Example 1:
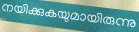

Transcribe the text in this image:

നയിക്കുകയുമായിരുന്നു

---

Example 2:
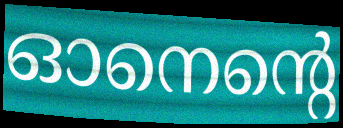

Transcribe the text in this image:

ഓനെന്റെ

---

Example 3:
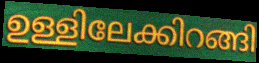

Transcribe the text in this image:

ഉള്ളിലേക്കിറങ്ങി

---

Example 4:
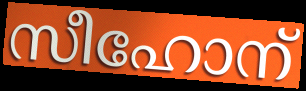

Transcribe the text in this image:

സീഹോന്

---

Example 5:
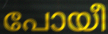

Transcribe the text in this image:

പോയീ